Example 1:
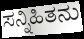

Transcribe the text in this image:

ಸನ್ನಿಹಿತನು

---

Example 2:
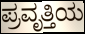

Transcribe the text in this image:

ಪ್ರವೃತ್ತಿಯ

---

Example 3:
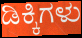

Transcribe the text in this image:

ಡಿಕ್ಕಿಗಳು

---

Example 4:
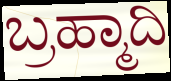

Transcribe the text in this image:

ಬ್ರಹ್ಮಾದಿ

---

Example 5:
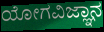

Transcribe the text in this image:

ಯೋಗವಿಜ್ಞಾನ